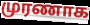
முரணாக